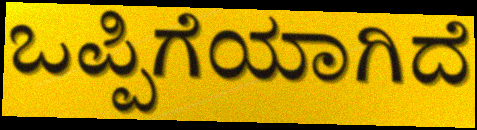
ಒಪ್ಪಿಗೆಯಾಗಿದೆ